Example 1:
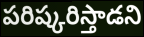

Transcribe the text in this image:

పరిష్కరిస్తాడని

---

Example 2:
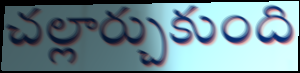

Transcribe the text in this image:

చల్లార్చుకుంది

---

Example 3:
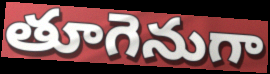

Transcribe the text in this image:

తూగెనుగా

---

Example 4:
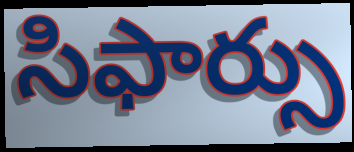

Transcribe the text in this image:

సిఫార్సు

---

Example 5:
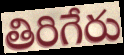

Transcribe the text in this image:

తిరిగేరు